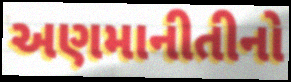
અણમાનીતીનો